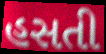
હસતી